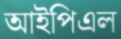
আইপিএল